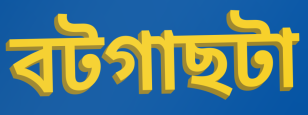
বটগাছটা